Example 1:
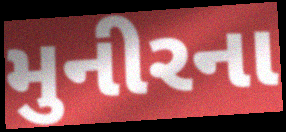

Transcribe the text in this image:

મુનીરના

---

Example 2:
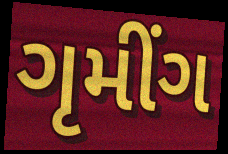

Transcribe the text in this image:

ગૃમીંગ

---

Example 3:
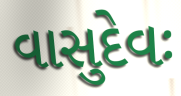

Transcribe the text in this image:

વાસુદેવઃ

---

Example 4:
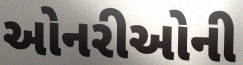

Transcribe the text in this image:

ઓનરીઓની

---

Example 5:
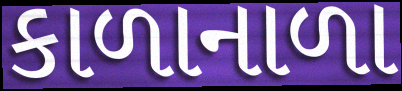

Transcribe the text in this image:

કાળાનાળા